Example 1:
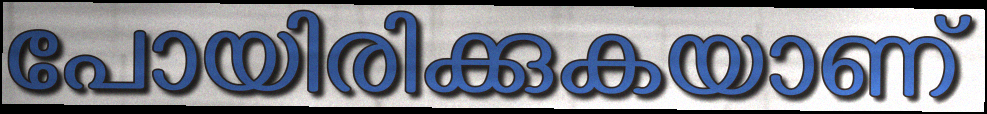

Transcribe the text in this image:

പോയിരിക്കുകയാണ്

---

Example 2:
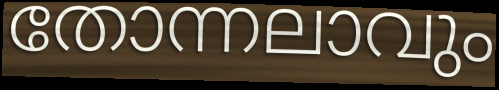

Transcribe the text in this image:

തോന്നലാവും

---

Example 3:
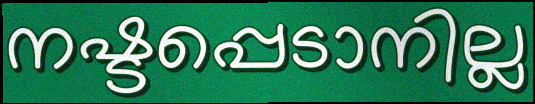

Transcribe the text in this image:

നഷ്ടപ്പെടാനില്ല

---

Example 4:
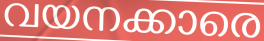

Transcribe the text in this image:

വയനക്കാരെ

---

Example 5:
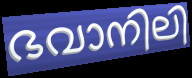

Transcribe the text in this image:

ഭവാനിലി